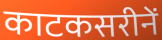
काटकसरीनें